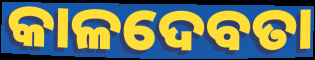
କାଳଦେବତା